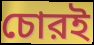
চোরই